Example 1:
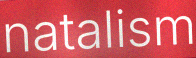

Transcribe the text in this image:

natalism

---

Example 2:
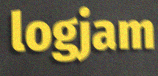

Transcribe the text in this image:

logjam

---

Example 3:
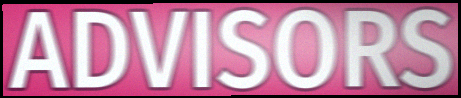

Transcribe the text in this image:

ADVISORS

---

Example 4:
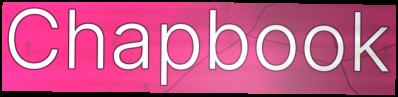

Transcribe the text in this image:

Chapbook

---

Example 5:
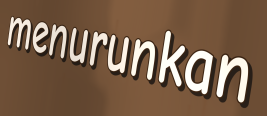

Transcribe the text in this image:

menurunkan